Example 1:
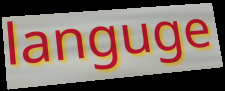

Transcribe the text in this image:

languge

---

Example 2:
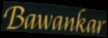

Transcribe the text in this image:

Bawankar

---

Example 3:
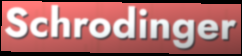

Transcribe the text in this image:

Schrodinger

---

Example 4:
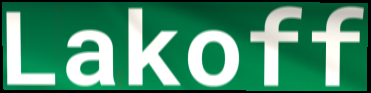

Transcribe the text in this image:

Lakoff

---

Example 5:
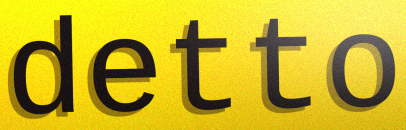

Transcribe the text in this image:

detto